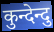
कुन्देन्दु